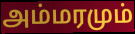
அம்மரமும்